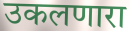
उकलणारा